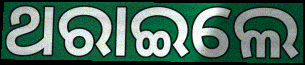
ଥରାଇଲେ